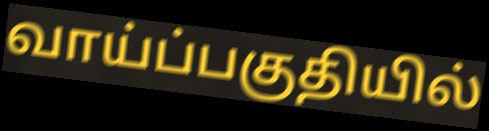
வாய்ப்பகுதியில்